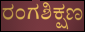
ರಂಗಶಿಕ್ಷಣ